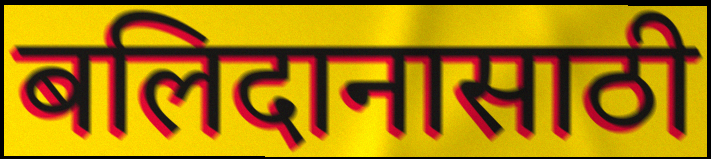
बलिदानासाठी